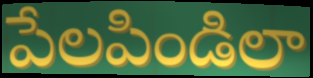
పేలపిండిలా